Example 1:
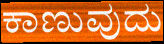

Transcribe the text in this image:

ಕಾಣುವುದು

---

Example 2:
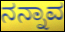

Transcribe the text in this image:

ನನ್ನಾವ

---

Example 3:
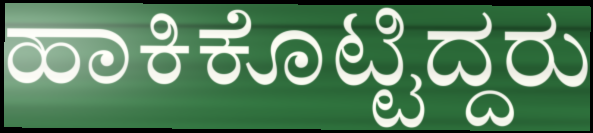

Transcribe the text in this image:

ಹಾಕಿಕೊಟ್ಟಿದ್ದರು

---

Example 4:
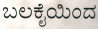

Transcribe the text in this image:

ಬಲಕೈಯಿಂದ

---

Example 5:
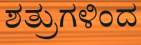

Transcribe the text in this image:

ಶತ್ರುಗಳಿಂದ